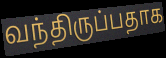
வந்திருப்பதாக